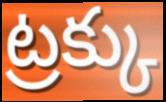
ట్రక్కు